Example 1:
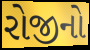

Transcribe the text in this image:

રોજીનો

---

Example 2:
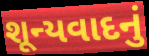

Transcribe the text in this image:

શૂન્યવાદનું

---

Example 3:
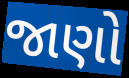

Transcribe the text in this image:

જાણો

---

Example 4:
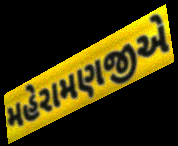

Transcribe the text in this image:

મહેરામણજીએ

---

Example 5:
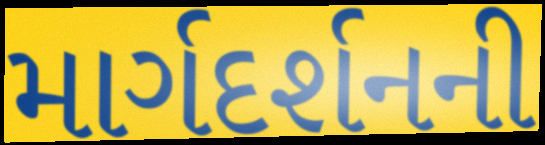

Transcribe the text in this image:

માર્ગદર્શનની